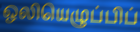
ஒலியெழுப்பிப்